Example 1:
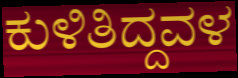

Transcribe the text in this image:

ಕುಳಿತಿದ್ದವಳ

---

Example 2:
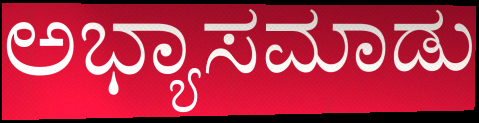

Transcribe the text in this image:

ಅಭ್ಯಾಸಮಾಡು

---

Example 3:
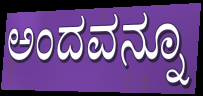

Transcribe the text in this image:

ಅಂದವನ್ನೂ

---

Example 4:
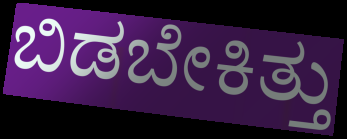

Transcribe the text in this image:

ಬಿಡಬೇಕಿತ್ತು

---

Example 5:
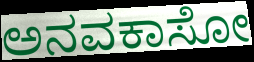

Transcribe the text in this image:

ಅನವಕಾಸೋ